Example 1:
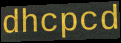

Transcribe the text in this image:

dhcpcd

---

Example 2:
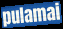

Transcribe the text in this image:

pulamai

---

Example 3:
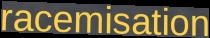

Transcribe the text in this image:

racemisation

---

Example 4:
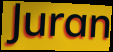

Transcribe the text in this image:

Juran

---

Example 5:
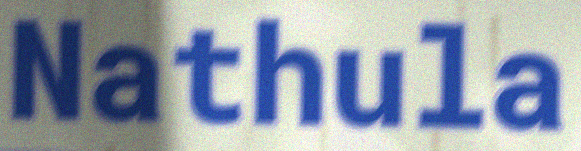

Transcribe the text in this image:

Nathula